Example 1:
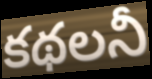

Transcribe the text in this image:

కథలనీ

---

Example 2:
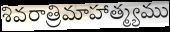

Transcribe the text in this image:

శివరాత్రిమాహాత్మ్యము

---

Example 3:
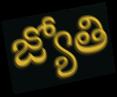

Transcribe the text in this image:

జ్యోతి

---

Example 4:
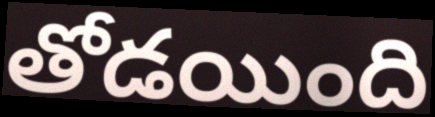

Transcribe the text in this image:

తోడయింది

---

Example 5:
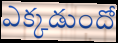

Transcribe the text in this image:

ఎక్కడుందో